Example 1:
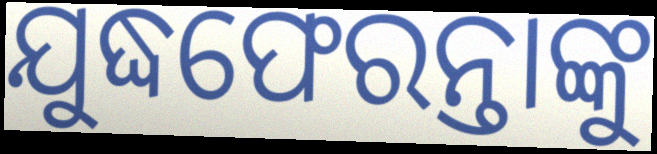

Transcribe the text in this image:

ଯୁଦ୍ଧଫେରନ୍ତାଙ୍କୁ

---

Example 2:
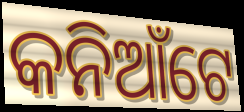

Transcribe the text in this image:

କନିଆଁଟେ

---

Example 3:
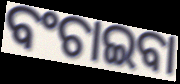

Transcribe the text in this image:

ବଂଚାଇବା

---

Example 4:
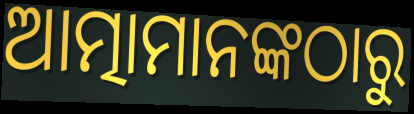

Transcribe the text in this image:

ଆତ୍ମାମାନଙ୍କଠାରୁ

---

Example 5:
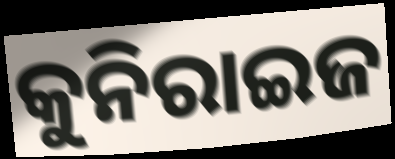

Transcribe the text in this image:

କୁନିରାଇଜ